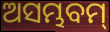
ଅସମ୍ଭବମ୍